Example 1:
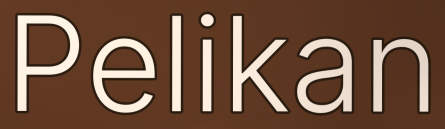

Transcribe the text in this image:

Pelikan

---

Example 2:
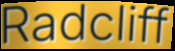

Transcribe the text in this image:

Radcliff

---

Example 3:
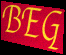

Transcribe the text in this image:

BEG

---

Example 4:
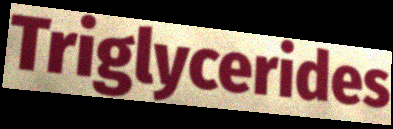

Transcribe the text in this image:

Triglycerides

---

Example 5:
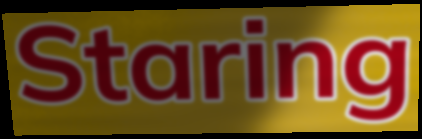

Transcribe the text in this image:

Staring